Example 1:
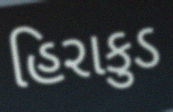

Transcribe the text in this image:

હિરાકુડ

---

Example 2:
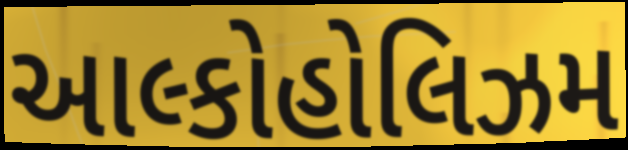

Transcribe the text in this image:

આલ્કોહોલિઝમ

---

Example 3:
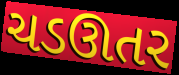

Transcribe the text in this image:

ચડઊતર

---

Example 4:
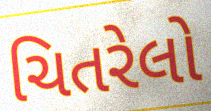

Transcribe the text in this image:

ચિતરેલો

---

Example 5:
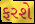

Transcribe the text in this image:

ફરશે